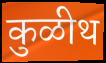
कुळीथ